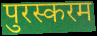
पुरस्करम